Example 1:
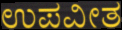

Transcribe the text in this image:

ಉಪವೀತ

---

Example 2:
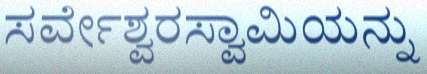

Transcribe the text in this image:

ಸರ್ವೇಶ್ವರಸ್ವಾಮಿಯನ್ನು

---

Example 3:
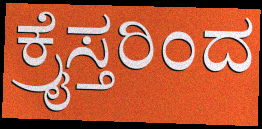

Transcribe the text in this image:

ಕ್ರೈಸ್ತರಿಂದ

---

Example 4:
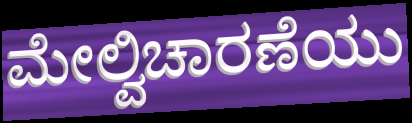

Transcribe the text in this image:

ಮೇಲ್ವಿಚಾರಣೆಯು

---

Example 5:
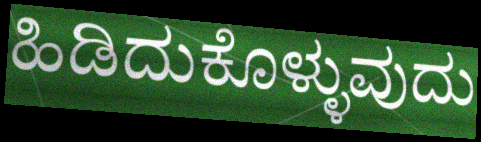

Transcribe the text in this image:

ಹಿಡಿದುಕೊಳ್ಳುವುದು